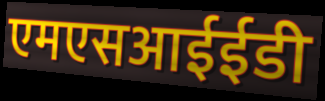
एमएसआईईडी